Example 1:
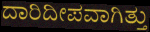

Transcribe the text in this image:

ದಾರಿದೀಪವಾಗಿತ್ತು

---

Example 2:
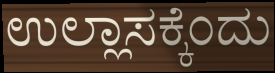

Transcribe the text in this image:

ಉಲ್ಲಾಸಕ್ಕೆಂದು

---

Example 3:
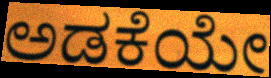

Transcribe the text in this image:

ಅಡಕೆಯೇ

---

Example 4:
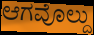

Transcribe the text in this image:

ಆಗವೊಲ್ದು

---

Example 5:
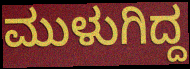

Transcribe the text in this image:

ಮುಳುಗಿದ್ದ